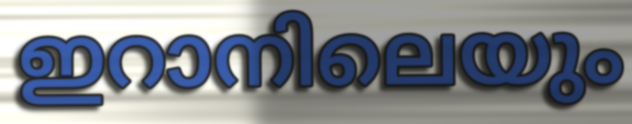
ഇറാനിലെയും